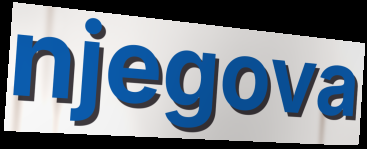
njegova